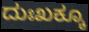
ದುಃಖಕ್ಕೂ